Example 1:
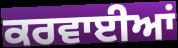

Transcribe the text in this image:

ਕਰਵਾਈਆਂ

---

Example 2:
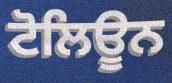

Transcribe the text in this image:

ਟੋਲਿਊਨ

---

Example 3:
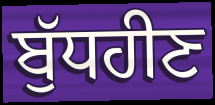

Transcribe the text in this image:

ਬੁੱਧਹੀਣ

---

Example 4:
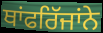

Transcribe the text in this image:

ਥਾਂਫਰਿੱਜਾਂਨੇ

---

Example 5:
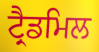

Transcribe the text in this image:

ਟ੍ਰੈਡਮਿਲ